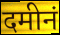
दमीनं